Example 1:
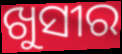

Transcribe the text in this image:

ଖୁସୀର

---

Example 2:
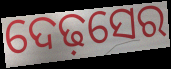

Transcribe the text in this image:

ଦେଢ଼ସେର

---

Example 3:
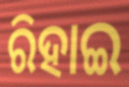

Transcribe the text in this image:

ରିହାଇ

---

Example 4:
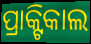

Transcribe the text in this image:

ପ୍ରାକ୍ଟିକାଲ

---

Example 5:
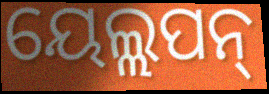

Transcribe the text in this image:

ୟେଲ୍ଲପନ୍